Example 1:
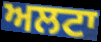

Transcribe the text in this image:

ਅਲਟਾ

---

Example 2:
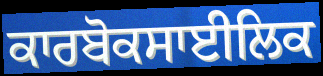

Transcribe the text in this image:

ਕਾਰਬੋਕਸਾਈਲਿਕ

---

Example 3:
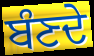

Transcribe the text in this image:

ਬੰਣਦੇ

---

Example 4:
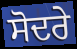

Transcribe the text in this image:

ਸੋਦਰੇ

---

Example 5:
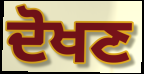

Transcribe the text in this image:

ਦੋਖਣ